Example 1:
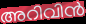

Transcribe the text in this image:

അറിവിൻ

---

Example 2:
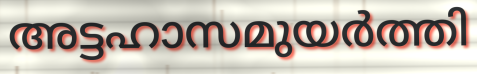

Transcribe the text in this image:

അട്ടഹാസമുയർത്തി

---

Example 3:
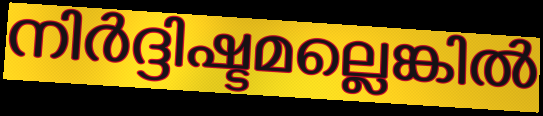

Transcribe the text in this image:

നിർദ്ദിഷ്ടമല്ലെങ്കിൽ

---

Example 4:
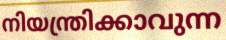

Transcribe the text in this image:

നിയന്ത്രിക്കാവുന്ന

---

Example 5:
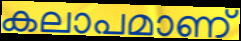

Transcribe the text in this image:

കലാപമാണ്